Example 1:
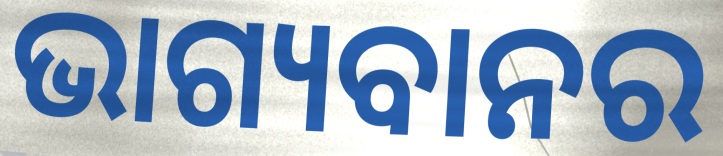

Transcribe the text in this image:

ଭାଗ୍ୟବାନର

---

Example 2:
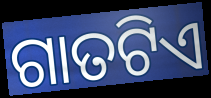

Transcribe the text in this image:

ଗାତଟିଏ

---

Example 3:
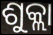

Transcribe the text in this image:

ଶୁକ୍ଲା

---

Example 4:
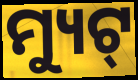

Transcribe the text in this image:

ମ୍ୟୁଟ୍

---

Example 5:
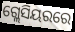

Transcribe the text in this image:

ଗ୍ଲେସିୟରରେ